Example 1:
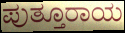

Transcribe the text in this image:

ಪುತ್ತೂರಾಯ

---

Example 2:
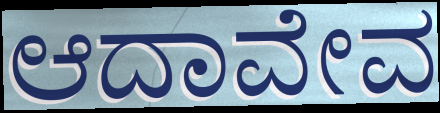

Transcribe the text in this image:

ಆದಾವೇವ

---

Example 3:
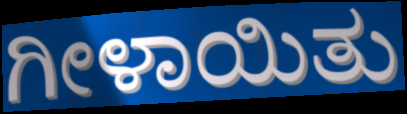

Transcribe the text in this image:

ಗೀಳಾಯಿತು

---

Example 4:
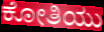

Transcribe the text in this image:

ಕೋತಿಯು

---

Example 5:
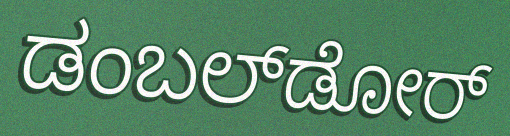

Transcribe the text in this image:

ಡಂಬಲ್‌ಡೋರ್